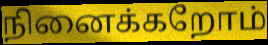
நினைக்கறோம்